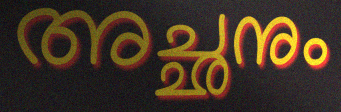
അച്ഛനും